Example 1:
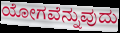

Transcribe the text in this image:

ಯೋಗವೆನ್ನುವುದು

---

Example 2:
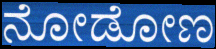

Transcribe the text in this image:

ನೋಡೋಣ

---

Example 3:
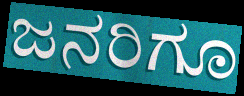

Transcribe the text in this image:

ಜನರಿಗೂ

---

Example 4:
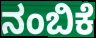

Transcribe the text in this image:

ನಂಬಿಕೆ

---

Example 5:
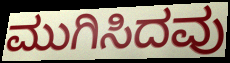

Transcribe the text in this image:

ಮುಗಿಸಿದವು